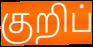
குறிப்